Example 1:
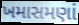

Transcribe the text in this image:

ખમાસમણાં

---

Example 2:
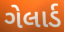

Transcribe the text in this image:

ગેલાર્ડ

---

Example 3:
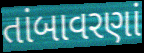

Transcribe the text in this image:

તાંબાવરણાં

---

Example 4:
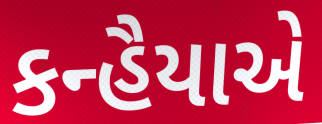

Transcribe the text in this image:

કન્હૈયાએ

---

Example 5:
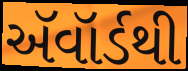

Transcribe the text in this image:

ઍવૉર્ડથી